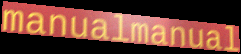
manualmanual